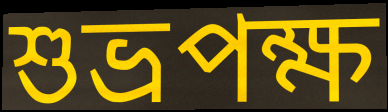
শুভ্রপক্ষ